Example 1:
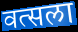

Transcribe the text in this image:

वत्सला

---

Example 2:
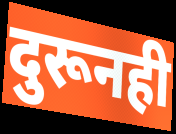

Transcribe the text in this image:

दुरूनही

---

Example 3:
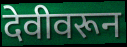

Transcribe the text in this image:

देवीवरून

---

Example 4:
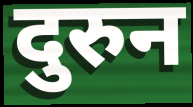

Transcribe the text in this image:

दुरुन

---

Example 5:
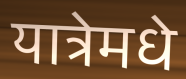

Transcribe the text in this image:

यात्रेमधे